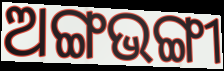
ଅଙ୍ଗଭଙ୍ଗୀ